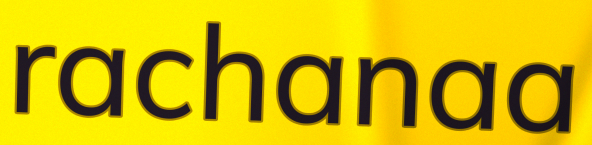
rachanaa